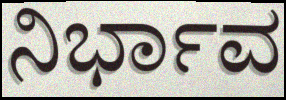
ನಿರ್ಭಾವ